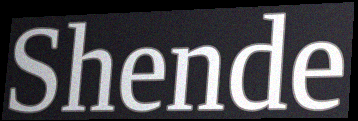
Shende